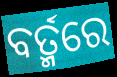
ବର୍ତ୍ମରେ